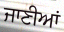
ਜਾਣੀਆਂ